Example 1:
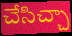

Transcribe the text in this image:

చేసిచ్చా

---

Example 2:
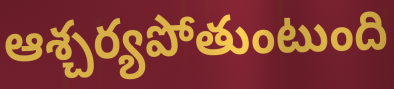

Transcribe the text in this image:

ఆశ్చర్యపోతుంటుంది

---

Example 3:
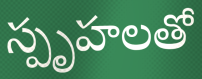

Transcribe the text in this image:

స్పృహలతో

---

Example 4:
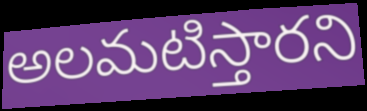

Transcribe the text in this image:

అలమటిస్తారని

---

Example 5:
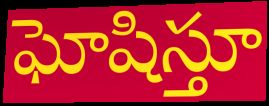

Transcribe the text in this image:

ఘోషిస్తూ